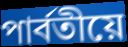
পাৰ্বতীয়ে